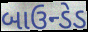
બાઉન્ડેડ